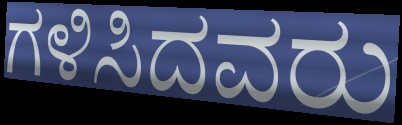
ಗಳಿಸಿದವರು